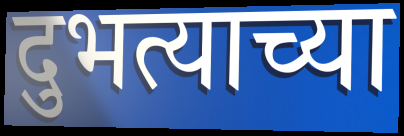
दुभत्याच्या